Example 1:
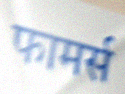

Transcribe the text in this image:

फामर्स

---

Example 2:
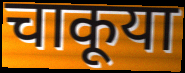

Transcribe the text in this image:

चाकूया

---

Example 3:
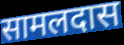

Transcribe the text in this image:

सामलदास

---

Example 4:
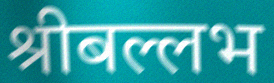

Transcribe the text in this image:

श्रीबल्लभ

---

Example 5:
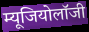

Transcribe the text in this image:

म्यूजियोलॉजी